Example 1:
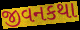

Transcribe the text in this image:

જીવનકથા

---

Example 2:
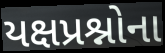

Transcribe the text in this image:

યક્ષપ્રશ્નોના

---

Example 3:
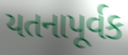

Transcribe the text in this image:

યતનાપૂર્વક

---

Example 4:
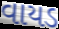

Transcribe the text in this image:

વાયડ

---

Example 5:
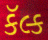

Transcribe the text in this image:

કૅલ્ક